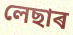
লেছাৰ